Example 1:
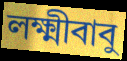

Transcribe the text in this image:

লক্ষ্মীবাবু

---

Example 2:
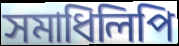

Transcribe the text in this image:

সমাধিলিপি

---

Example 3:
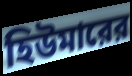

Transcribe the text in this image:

হিউমারের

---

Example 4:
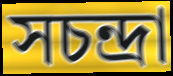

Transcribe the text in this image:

সচন্দ্রা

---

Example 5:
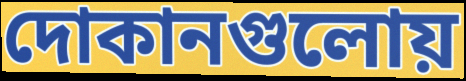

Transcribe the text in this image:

দোকানগুলোয়